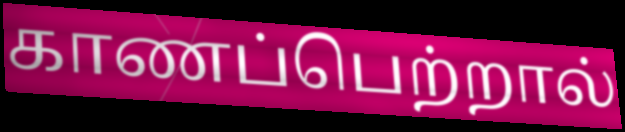
காணப்பெற்றால்